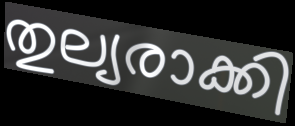
തുല്യരാക്കി